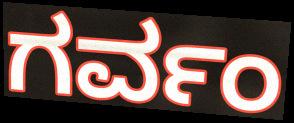
ಗರ್ವಂ